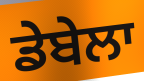
ਡੇਬੇਲਾ